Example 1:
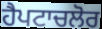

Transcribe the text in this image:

ਹੈਪਟਾਚਲੋਰ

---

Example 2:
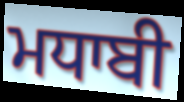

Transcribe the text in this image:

ਮਧਾਬੀ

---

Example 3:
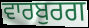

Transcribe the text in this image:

ਵਾਰਬੁਰਗ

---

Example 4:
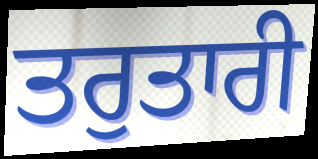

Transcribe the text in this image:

ਤਰੁਤਾਰੀ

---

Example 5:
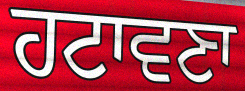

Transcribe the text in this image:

ਹਟਾਵਣਾ